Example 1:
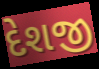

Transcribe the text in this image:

દેશજી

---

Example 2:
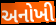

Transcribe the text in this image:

અનોખી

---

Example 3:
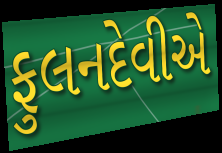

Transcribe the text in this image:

ફુલનદેવીએ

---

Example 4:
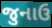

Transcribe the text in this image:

જુનાઉ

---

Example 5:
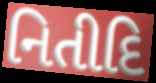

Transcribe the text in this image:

નિતીદિ